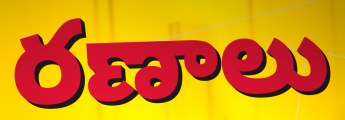
రణాలు